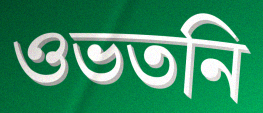
ওভতনি